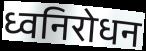
ध्वनिरोधन